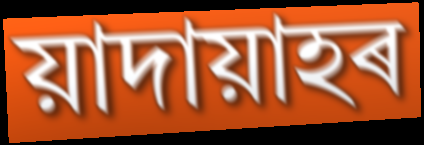
য়াদায়াহৰ